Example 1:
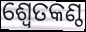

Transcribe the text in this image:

ଶ୍ୱେତକଣ୍ଠ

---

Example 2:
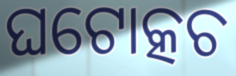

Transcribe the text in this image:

ଘଟୋତ୍କଚ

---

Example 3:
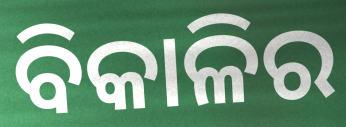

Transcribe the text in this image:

ବିକାଳିର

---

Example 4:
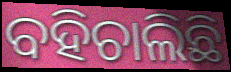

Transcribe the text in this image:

ବହିଚାଲିଛି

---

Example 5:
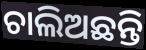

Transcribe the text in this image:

ଚାଲିଅଛନ୍ତି